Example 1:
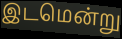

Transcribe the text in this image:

இடமென்று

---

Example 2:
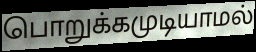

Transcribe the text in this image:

பொறுக்கமுடியாமல்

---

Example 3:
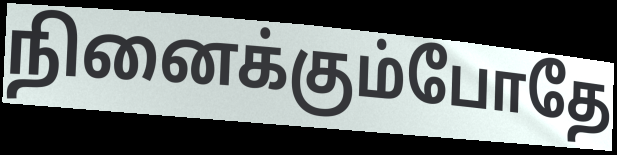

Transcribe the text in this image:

நினைக்கும்போதே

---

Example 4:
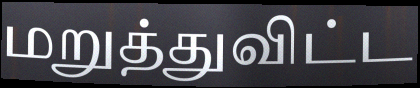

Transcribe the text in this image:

மறுத்துவிட்ட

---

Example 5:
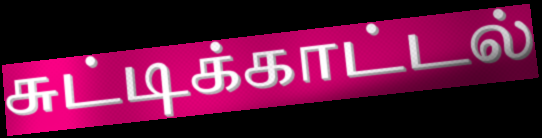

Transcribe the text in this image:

சுட்டிக்காட்டல்